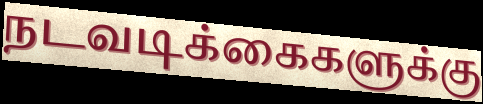
நடவடிக்கைகளுக்கு